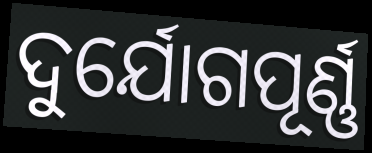
ଦୁର୍ଯୋଗପୂର୍ଣ୍ଣ